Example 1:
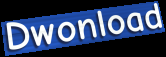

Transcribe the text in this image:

Dwonload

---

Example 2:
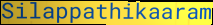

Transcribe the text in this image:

Silappathikaaram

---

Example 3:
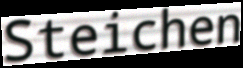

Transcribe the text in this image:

Steichen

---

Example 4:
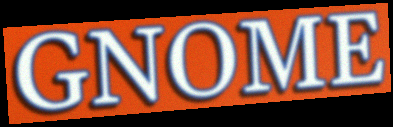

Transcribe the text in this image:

GNOME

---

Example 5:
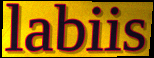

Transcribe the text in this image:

labiis